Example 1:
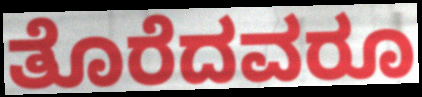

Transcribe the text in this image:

ತೊರೆದವರೂ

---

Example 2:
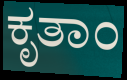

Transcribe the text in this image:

ಕೃತಾಂ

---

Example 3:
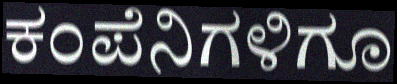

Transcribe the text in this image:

ಕಂಪೆನಿಗಳಿಗೂ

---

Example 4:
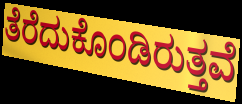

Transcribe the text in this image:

ತೆರೆದುಕೊಂಡಿರುತ್ತವೆ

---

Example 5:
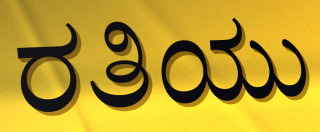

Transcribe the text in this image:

ರತಿಯು